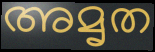
അമൃത